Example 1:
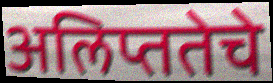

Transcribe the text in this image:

अलिप्ततेचे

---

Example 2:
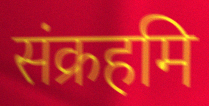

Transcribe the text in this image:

संक्रहमि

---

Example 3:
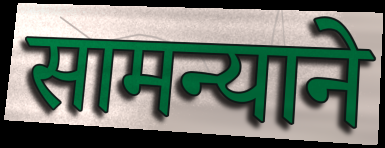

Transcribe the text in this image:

सामन्याने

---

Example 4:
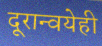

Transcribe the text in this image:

दूरान्वयेही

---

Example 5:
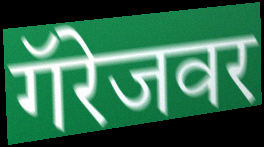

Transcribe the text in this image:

गॅरेजवर